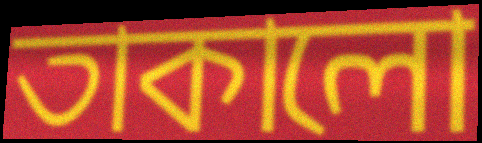
তাকালো